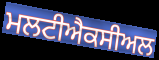
ਮਲਟੀਐਕਸੀਅਲ